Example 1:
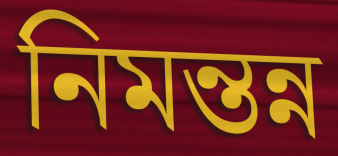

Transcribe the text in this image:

নিমন্তন্ন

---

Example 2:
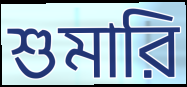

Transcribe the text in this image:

শুমারি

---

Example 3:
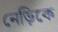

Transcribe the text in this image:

নেড়িকে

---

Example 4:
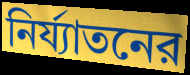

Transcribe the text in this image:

নির্য্যাতনের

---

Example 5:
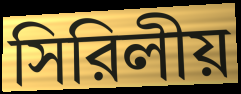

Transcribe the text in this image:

সিরিলীয়